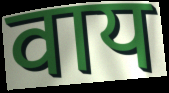
वाय